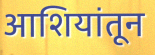
आशियांतून